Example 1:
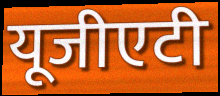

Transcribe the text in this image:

यूजीएटी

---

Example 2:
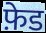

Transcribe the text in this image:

फ़ेड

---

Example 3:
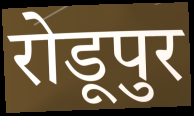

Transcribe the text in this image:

रोडूपुर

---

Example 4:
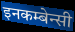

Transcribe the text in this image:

इनकम्बेन्सी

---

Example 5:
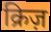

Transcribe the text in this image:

क्रिज़